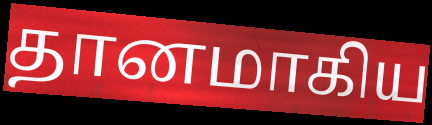
தானமாகிய